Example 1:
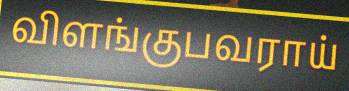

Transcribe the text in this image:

விளங்குபவராய்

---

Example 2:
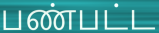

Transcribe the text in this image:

பண்பட்ட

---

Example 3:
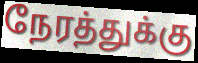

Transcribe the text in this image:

நேரத்துக்கு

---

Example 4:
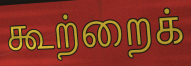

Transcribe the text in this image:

கூற்றைக்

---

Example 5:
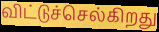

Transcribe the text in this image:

விட்டுச்செல்கிறது